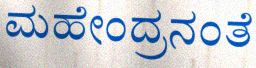
ಮಹೇಂದ್ರನಂತೆ